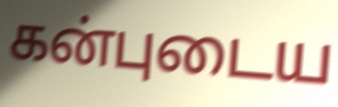
கன்புடைய